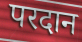
परदान